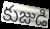
కుజుడి